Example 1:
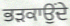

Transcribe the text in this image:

ਭੜਕਾਉਂਦੇ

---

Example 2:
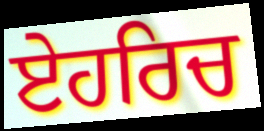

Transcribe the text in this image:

ਏਹਰਿਚ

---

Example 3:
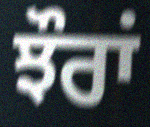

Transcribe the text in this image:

ਝੌਰਾਂ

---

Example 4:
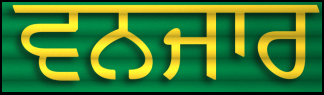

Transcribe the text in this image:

ਵਨਜਾਰ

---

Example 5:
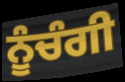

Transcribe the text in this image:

ਨੂੰਚੰਗੀ